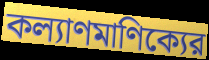
কল্যাণমাণিক্যের